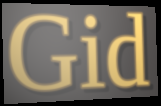
Gid